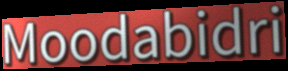
Moodabidri